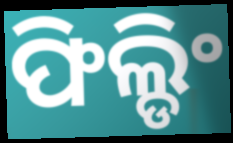
ଫିଲ୍ଡିଂ